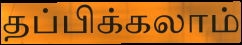
தப்பிக்கலாம்